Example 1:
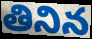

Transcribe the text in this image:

తినిన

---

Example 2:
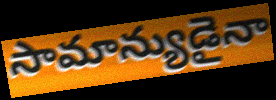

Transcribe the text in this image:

సామాన్యుడైనా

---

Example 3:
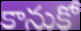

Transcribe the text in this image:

కానుకో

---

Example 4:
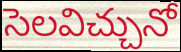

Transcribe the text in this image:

సెలవిచ్చునో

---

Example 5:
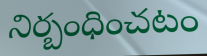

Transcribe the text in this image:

నిర్బంధించటం